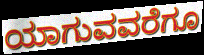
ಯಾಗುವವರೆಗೂ